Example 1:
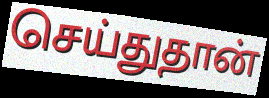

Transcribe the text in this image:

செய்துதான்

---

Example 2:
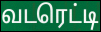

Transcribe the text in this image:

வடரெட்டி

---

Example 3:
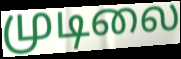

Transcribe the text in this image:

முடிலை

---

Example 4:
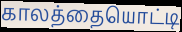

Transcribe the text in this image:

காலத்தையொட்டி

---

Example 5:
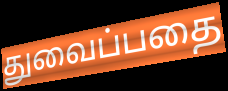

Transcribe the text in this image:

துவைப்பதை